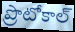
ప్రొటోకాల్